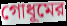
গোধূমের